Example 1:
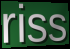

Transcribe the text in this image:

riss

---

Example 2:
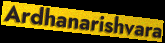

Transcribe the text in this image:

Ardhanarishvara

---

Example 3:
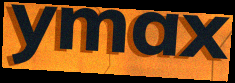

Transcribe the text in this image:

ymax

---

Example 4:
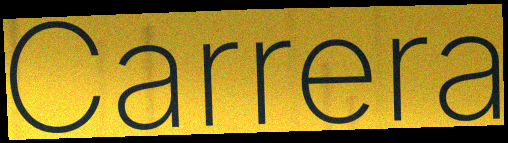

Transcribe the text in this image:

Carrera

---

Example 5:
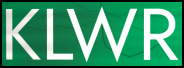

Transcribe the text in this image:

KLWR